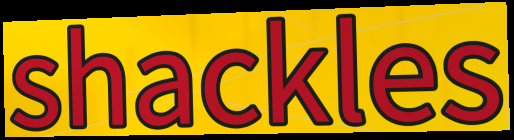
shackles